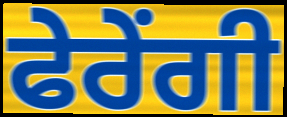
ਫੇਰੇਂਗੀ